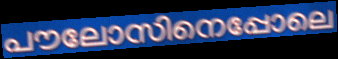
പൗലോസിനെപ്പോലെ